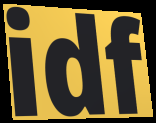
idf